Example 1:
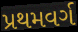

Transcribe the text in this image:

પ્રથમવર્ગ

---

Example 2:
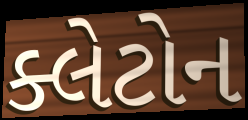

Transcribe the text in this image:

ક્લેટોન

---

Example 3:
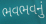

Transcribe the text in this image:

ભવભવનું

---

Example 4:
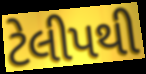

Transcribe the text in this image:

ટેલીપથી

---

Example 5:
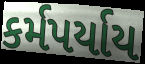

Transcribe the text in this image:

કર્મપર્યાય